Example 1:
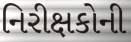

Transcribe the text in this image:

નિરીક્ષકોની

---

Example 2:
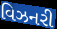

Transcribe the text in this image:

વિઝનરી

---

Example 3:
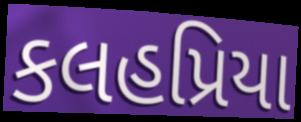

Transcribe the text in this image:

કલહપ્રિયા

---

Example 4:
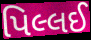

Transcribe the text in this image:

પિલ્લઈ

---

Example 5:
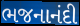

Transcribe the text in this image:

ભજનાનંદી